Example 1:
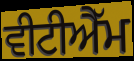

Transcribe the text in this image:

ਵੀਟੀਐੱਮ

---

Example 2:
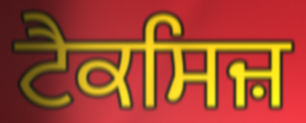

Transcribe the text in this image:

ਟੈਕਸਿਜ਼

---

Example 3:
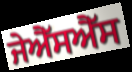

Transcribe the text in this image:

ਜੇਐੱਸਐੱਸ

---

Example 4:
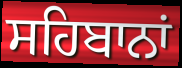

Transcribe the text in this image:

ਸਹਿਬਾਨਾਂ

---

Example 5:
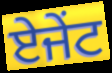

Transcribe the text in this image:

ਏਜੇਂਟ